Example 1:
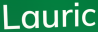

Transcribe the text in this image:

Lauric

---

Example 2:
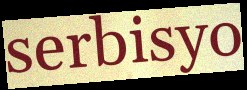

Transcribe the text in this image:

serbisyo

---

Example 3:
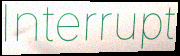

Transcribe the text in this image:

Interrupt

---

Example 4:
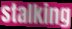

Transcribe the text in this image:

stalking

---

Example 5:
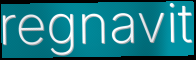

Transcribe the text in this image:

regnavit